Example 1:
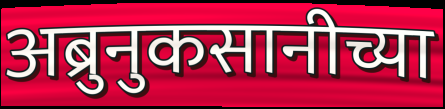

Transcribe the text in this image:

अब्रुनुकसानीच्या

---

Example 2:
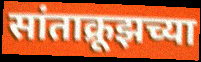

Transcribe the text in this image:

सांताक्रूझच्या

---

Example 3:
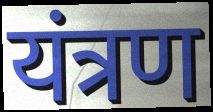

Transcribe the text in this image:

यंत्रण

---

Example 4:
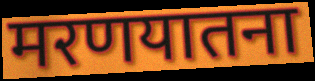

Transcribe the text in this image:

मरणयातना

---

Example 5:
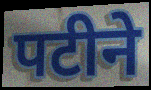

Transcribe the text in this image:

पटीने